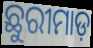
ଛୁରୀମାଡ଼